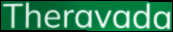
Theravada